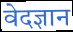
वेदज्ञान